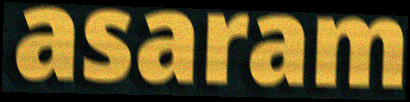
asaram